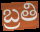
బ్రతి